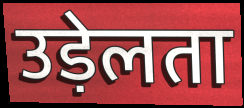
उड़ेलता